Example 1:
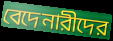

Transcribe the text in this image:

বেদেনারীদের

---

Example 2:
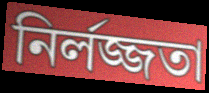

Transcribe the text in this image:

নির্লজ্জতা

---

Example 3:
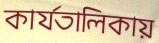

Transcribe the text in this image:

কার্যতালিকায়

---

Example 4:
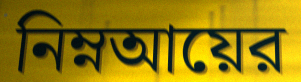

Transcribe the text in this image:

নিম্নআয়ের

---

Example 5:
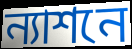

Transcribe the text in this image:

ন্যাশনে